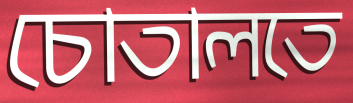
চোতালতে